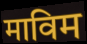
माविम